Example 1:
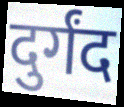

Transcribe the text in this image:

दुर्गंद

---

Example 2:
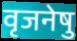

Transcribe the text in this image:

वृजनेषु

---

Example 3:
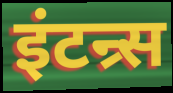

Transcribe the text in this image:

इंटन्र्स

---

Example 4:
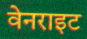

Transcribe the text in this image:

वेनराइट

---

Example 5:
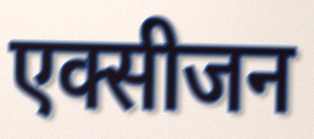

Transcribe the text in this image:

एक्सीजन